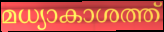
മധ്യാകാശത്ത്